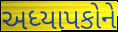
અધ્યાપકોને